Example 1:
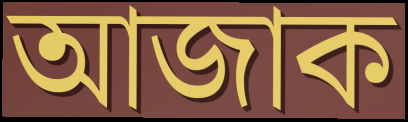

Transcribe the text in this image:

আজাক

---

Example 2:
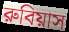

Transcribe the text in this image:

রুবিয়াস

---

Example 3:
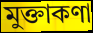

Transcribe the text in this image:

মুক্তাকণা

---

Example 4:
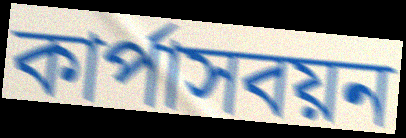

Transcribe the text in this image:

কার্পাসবয়ন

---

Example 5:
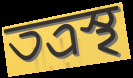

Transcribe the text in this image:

তত্রস্থ